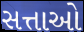
સત્તાઓ